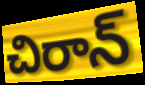
చిరాన్